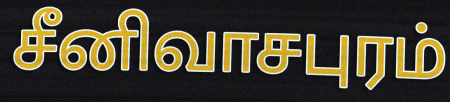
சீனிவாசபுரம்